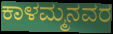
ಕಾಳಮ್ಮನವರ